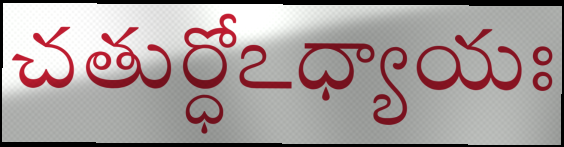
చతుర్ధోఽధ్యాయః